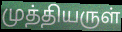
முத்தியருள்